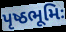
પૃષ્ઠભૂમિઃ